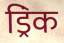
ड्रिंक